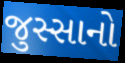
જુસ્સાનો